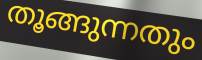
തൂങ്ങുന്നതും